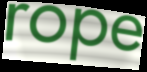
rope